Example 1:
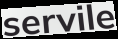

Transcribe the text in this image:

servile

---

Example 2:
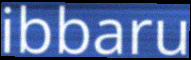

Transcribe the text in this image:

ibbaru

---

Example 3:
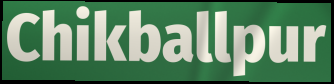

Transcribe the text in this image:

Chikballpur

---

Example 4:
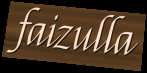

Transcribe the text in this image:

faizulla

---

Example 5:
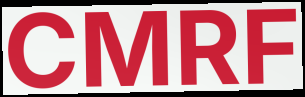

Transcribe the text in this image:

CMRF